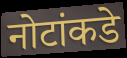
नोटांकडे